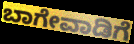
ಬಾಗೇವಾಡಿಗೆ